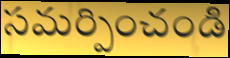
సమర్పించండి